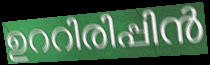
ഉററിരിപ്പിൻ